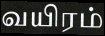
வயிரம்